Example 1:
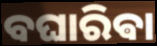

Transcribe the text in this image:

ବଘାରିଵା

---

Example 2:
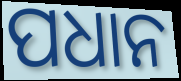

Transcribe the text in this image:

ପଧାନ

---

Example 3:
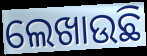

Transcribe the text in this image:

ଲେଖାଉଛି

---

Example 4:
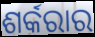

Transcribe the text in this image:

ଶର୍କରାର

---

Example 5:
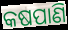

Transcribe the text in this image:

କଷପାଣି